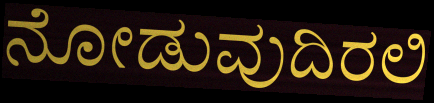
ನೋಡುವುದಿರಲಿ